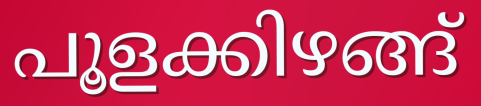
പൂളക്കിഴങ്ങ്